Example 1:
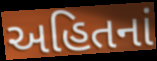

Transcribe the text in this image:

અહિતનાં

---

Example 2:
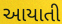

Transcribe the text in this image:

આયાતી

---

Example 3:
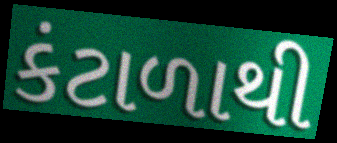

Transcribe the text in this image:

કંટાળાથી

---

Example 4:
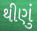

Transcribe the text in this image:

થીણું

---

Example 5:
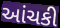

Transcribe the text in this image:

આંચકી